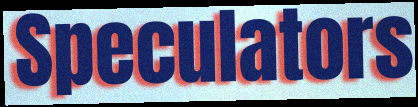
Speculators